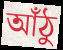
আঁঠু